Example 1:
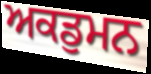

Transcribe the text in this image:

ਅਕਡੁਮਨ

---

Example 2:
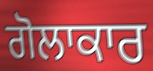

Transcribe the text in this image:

ਗੋਲਾਕਾਰ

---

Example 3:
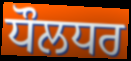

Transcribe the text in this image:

ਧੌਲਧਰ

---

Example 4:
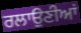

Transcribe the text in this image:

ਰਲਾਉਣੀਆਂ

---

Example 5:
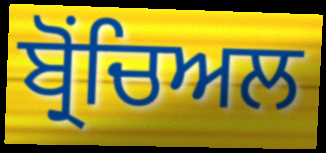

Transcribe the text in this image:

ਬ੍ਰੋਂਚਿਅਲ